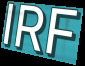
IRF